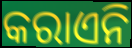
କରାଏନି